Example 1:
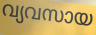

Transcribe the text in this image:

വ്യവസായ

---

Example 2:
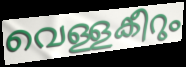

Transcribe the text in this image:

വെള്ളകീറും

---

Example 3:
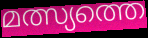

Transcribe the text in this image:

മത്സ്യത്തെ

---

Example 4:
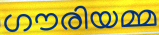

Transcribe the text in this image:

ഗൗരിയമ്മ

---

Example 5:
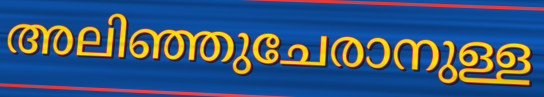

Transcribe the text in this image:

അലിഞ്ഞുചേരാനുള്ള